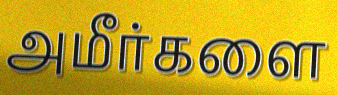
அமீர்களை